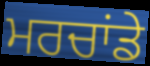
ਮਰਚਾਂਡੇ